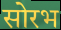
सोरभ